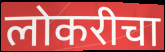
लोकरीचा